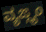
ವ್ಯಙ್ಗ್ಯಂ